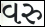
વરુ